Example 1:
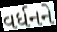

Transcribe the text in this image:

વર્ધનને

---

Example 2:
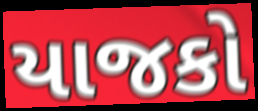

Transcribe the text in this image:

યાજકો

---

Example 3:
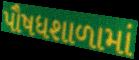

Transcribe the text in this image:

પૌષધશાળામાં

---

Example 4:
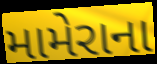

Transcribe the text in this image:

મામેરાના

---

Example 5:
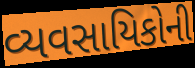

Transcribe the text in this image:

વ્યવસાયિકોની